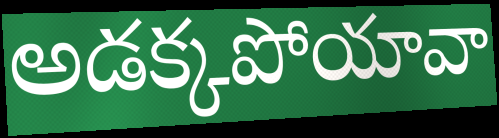
అడక్కపోయావా